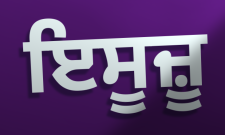
ਇਸੂਜ਼ੂ